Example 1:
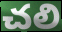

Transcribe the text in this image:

చలి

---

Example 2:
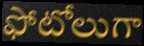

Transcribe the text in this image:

ఫోటోలుగా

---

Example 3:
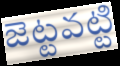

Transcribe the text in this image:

జెట్టవట్టి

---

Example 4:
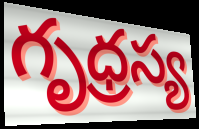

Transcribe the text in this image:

గృధ్రస్య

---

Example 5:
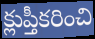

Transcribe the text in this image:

క్లుప్తీకరించి